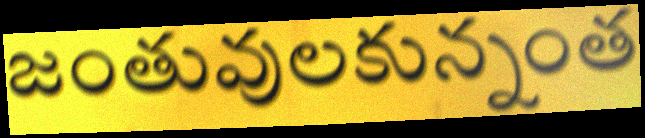
జంతువులకున్నంత